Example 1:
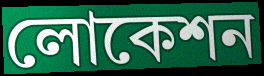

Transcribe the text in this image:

লোকেশন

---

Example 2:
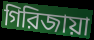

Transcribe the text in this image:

গিরিজায়া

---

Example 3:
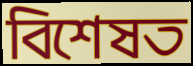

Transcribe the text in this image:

বিশেষত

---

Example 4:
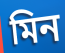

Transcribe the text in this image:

মিন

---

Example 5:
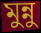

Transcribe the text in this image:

মুন্নু